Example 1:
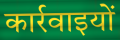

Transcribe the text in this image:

कार्रवाइयों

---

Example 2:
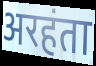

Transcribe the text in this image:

अरहंता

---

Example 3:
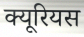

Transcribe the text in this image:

क्यूरियस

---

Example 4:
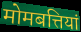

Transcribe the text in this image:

मोमबत्तियां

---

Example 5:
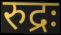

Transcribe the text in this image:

रुद्रः